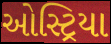
ઓસ્ટ્રિયા